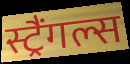
स्ट्रैंगल्स